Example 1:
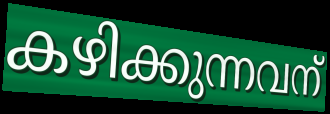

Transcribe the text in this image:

കഴിക്കുന്നവന്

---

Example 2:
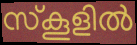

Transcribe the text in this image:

സ്കൂളിൽ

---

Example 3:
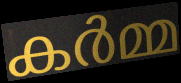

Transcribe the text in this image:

കർമ്മ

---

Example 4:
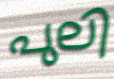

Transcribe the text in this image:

പുലി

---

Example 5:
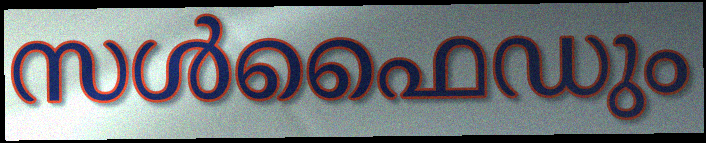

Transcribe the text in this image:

സൾഫൈഡും